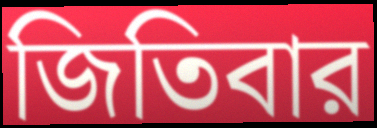
জিতিবার